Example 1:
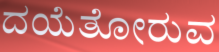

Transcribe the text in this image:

ದಯೆತೋರುವ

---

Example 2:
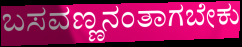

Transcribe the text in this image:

ಬಸವಣ್ಣನಂತಾಗಬೇಕು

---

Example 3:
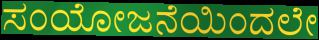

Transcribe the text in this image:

ಸಂಯೋಜನೆಯಿಂದಲೇ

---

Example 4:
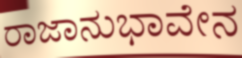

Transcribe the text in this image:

ರಾಜಾನುಭಾವೇನ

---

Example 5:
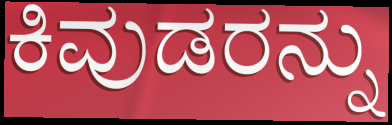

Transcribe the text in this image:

ಕಿವುಡರನ್ನು